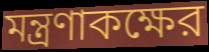
মন্ত্রণাকক্ষের